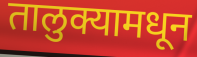
तालुक्यामधून